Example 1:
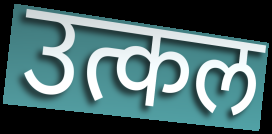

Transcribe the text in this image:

उत्कल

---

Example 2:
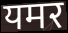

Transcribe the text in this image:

यमर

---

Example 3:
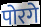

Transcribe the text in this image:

पोरगे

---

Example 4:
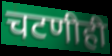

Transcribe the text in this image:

चटणीही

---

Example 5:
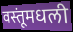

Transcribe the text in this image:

वस्तूंमधली